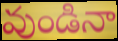
వుండినా